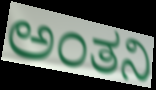
ಅಂತನಿ